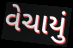
વેચાયું